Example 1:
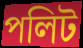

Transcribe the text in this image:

পলিট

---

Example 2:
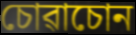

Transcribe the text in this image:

চোৱাচোন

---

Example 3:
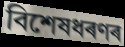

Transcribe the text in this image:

বিশেষধৰণৰ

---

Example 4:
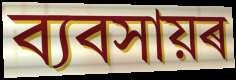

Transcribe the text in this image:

ব্যবসায়ৰ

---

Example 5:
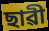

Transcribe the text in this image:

ছাৱী